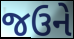
જઉને